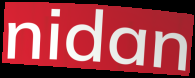
nidan